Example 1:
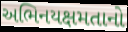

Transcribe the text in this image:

અભિનયક્ષમતાનો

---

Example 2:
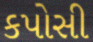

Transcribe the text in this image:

કપોસી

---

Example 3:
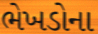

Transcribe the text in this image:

ભેખડોના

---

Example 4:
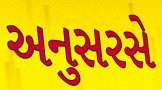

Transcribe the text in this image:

અનુસરસે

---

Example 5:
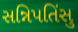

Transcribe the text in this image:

સન્નિપતિંસુ